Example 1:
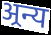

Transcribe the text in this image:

अ्रन्य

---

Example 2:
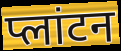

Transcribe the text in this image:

प्लांटन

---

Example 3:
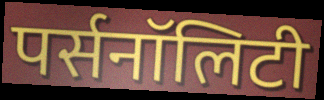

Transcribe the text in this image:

पर्सनॉलिटी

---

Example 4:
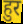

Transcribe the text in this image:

हुर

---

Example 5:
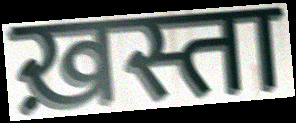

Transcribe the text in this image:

ख़स्ता